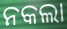
ନକଲା